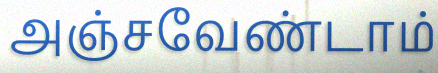
அஞ்சவேண்டாம்